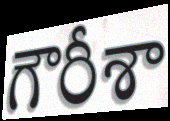
గౌరీశా